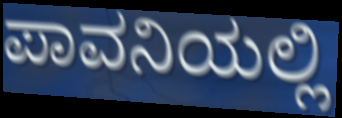
ಪಾವನಿಯಲ್ಲಿ